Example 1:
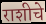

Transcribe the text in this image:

राशीचे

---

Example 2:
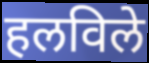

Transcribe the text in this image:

हलविले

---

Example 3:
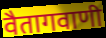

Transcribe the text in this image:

वैतागवाणी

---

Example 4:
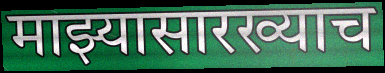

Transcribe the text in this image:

माझ्यासारख्याच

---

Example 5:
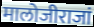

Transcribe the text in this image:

मालोजीराजां